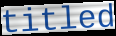
titled